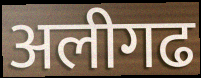
अलीगढ